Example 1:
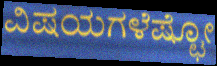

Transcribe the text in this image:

ವಿಷಯಗಳೆಷ್ಟೋ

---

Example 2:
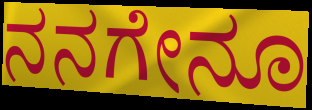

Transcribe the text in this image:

ನನಗೇನೂ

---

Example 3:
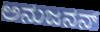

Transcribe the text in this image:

ಅನುಜನನ್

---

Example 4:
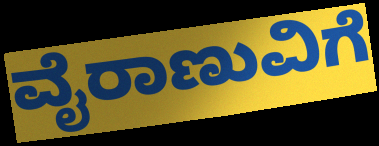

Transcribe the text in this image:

ವೈರಾಣುವಿಗೆ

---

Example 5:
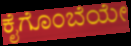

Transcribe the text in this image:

ಕೈಗೊಂಬೆಯೇ